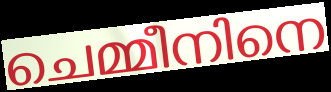
ചെമ്മീനിനെ